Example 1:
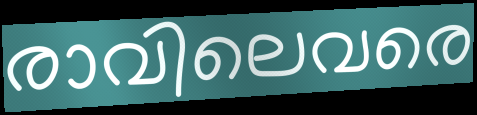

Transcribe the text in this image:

രാവിലെവരെ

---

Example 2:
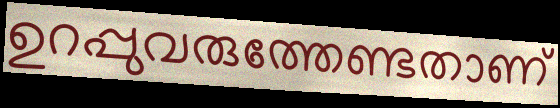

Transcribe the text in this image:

ഉറപ്പുവരുത്തേണ്ടതാണ്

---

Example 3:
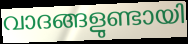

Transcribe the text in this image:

വാദങ്ങളുണ്ടായി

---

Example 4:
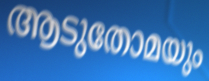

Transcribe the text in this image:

ആടുതോമയും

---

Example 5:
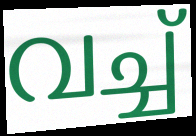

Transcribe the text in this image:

വച്ച്